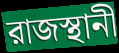
রাজস্থানী